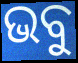
ଭବୁ